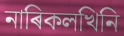
নাৰিকলখিনি